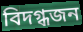
বিদগ্ধজন